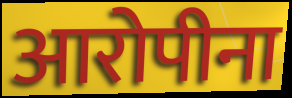
आरोपीना